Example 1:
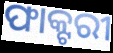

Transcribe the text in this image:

ଫାକ୍ଟରୀ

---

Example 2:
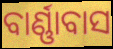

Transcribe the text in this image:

ବାର୍ଣ୍ଣାବାସ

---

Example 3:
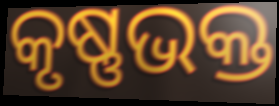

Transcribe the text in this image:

କୃଷ୍ଣଭକ୍ତ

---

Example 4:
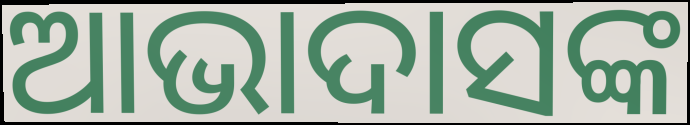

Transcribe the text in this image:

ଆଭାଦାସଙ୍କ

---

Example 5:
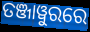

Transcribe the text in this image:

ତଞ୍ଜାୱୁରରେ